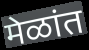
मेळांत